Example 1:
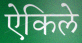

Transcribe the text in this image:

ऐकिले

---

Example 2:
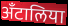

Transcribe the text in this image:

अँटालिया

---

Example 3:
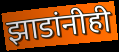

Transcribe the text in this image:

झाडांनीही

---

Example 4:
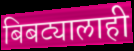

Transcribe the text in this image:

बिबट्यालाही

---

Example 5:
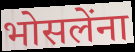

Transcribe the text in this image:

भोसलेंना